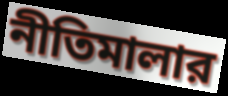
নীতিমালার